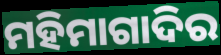
ମହିମାଗାଦିର